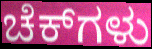
ಚೆಕ್‌ಗಳು